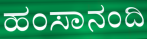
ಹಂಸಾನಂದಿ